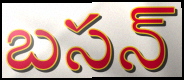
బసన్